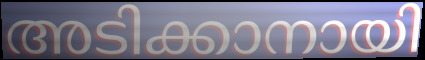
അടിക്കാനായി